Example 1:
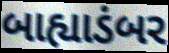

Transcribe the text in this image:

બાહ્યાડંબર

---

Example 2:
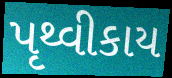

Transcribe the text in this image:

પૃથ્વીકાય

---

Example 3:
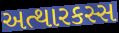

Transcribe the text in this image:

અત્થારકસ્સ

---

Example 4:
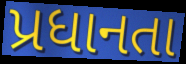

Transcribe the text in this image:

પ્રધાનતા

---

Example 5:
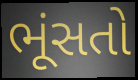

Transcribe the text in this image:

ભૂંસતો